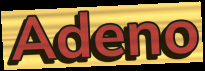
Adeno